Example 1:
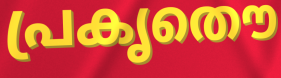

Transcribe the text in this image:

പ്രകൃതൌ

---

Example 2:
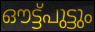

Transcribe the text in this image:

ഔട്ട്പുട്ടും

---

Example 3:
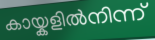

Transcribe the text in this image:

കായ്കളിൽനിന്ന്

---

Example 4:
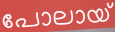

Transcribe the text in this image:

പോലായ്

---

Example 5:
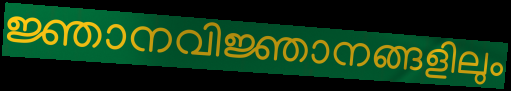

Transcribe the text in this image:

ജ്ഞാനവിജ്ഞാനങ്ങളിലും